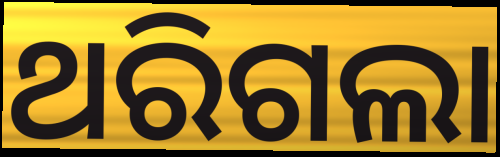
ଥରିଗଲା